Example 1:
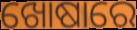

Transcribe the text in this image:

ଖୋଷାରେ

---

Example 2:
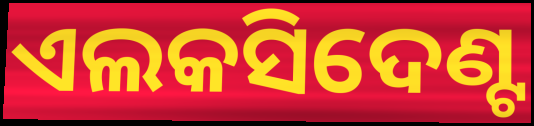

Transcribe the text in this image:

ଏଲକସିଦେଣ୍ଟ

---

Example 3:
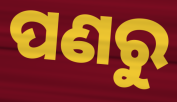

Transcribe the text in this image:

ପଣରୁ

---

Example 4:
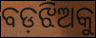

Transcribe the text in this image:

ବଡ଼ଝିଅକୁ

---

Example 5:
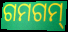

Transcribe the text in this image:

ଗମଗମ୍